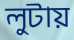
লুটায়